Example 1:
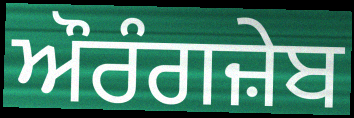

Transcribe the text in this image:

ਔਰੰਗਜ਼ੇਬ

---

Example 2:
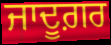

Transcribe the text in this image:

ਜਾਦੂਗ਼ਰ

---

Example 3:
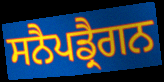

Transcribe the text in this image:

ਸਨੈਪਡ੍ਰੈਗਨ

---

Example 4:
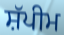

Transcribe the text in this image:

ਸ਼ੱਪੀਮ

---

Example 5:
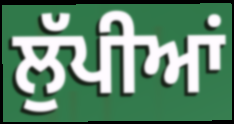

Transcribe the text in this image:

ਲੁੱਪੀਆਂ